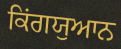
ਕਿਂਗਯੁਆਨ